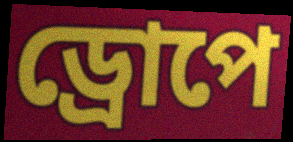
ড্ৰোপে